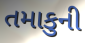
તમાકુની